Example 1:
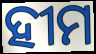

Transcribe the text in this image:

ହୀମ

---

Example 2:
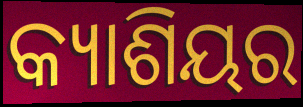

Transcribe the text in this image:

କ୍ୟାଶିୟର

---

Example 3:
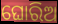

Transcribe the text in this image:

ଘୋରିଅ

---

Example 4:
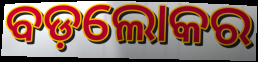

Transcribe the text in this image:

ବଡ଼ଲୋକର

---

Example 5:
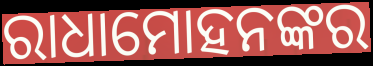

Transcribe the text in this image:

ରାଧାମୋହନଙ୍କର